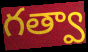
గత్వా